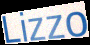
Lizzo